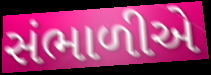
સંભાળીએ